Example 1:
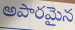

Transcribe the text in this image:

అపారమైన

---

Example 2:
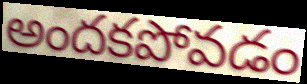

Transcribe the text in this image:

అందకపోవడం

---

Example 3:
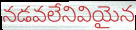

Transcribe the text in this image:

నడవలేనివియైన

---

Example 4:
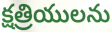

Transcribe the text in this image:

క్షత్రియులను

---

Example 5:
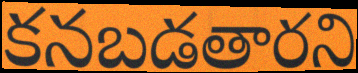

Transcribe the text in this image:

కనబడతారని